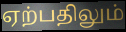
ஏற்பதிலும்